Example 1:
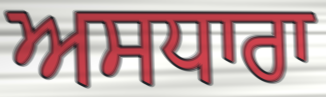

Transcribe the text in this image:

ਅਸਧਾਰਾ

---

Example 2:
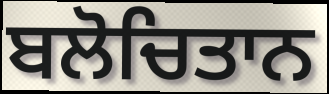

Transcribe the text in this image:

ਬਲੋਚਿਤਾਨ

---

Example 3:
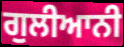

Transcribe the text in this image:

ਗੁਲੀਆਨੀ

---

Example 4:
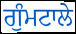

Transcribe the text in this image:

ਗੁੰਮਟਾਲੇ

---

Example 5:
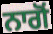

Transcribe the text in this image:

ਨਾਗੋਂ